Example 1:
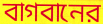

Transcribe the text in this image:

বাগবানের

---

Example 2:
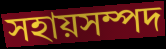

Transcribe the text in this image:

সহায়সম্পদ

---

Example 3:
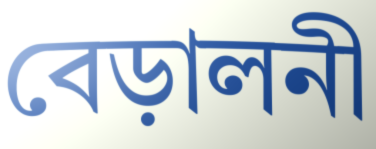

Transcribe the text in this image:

বেড়ালনী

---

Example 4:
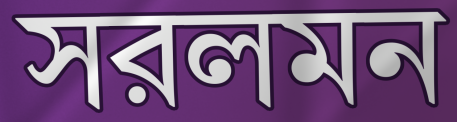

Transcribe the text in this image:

সরলমন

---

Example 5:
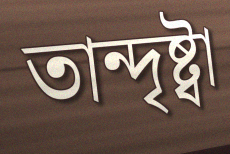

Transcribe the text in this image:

তান্দৃষ্ট্বা